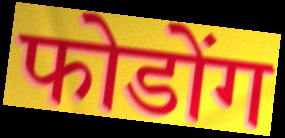
फोडोंग